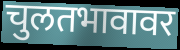
चुलतभावावर